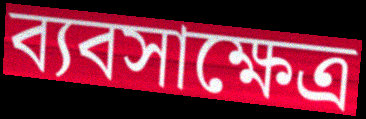
ব্যবসাক্ষেত্র